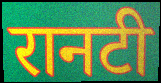
रानटी